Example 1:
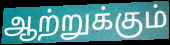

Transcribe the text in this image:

ஆற்றுக்கும்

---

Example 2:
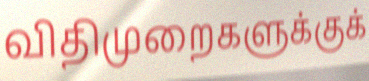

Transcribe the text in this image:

விதிமுறைகளுக்குக்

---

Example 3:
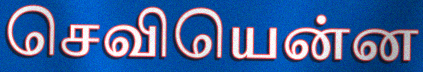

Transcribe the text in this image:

செவியென்ன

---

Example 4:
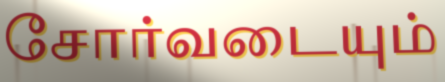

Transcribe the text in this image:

சோர்வடையும்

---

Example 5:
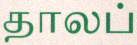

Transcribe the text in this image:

தாலப்